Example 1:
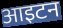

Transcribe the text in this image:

आइटन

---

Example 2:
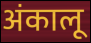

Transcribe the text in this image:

अंकालू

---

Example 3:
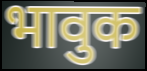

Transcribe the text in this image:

भावुक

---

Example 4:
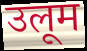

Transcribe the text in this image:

उलूम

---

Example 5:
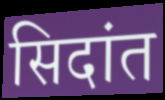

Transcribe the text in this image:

सिदांत